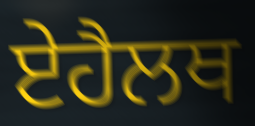
ਏਹੈਲਥ